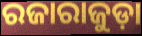
ରଜାରାଜୁଡ଼ା